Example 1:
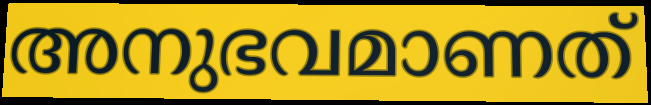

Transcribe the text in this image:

അനുഭവമാണത്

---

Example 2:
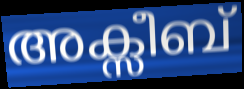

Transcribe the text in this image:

അക്സീബ്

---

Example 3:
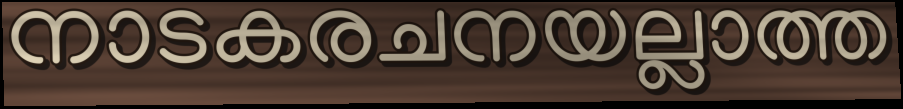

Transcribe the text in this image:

നാടകരചനയല്ലാത്ത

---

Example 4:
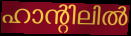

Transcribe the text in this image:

ഹാന്റിലിൽ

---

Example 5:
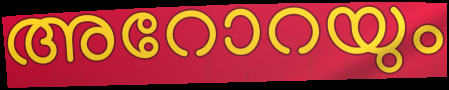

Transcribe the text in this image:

അറോറയും